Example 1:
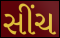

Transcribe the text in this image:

સીંચ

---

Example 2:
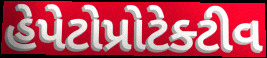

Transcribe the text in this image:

હેપેટોપ્રોટેક્ટીવ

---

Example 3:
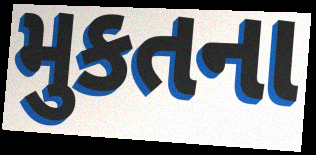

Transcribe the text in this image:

મુકતના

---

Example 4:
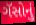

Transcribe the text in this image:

ગૅસોનું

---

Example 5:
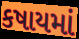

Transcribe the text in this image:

કષાયમાં